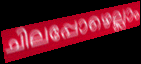
ചിലപ്പോഴെല്ലാം